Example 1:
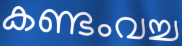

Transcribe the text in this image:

കണ്ടംവച്ച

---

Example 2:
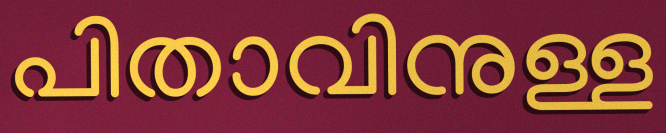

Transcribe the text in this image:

പിതാവിനുള്ള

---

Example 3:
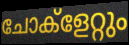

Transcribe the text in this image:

ചോക്ളേറ്റും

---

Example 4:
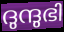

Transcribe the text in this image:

ദുന്ദുഭി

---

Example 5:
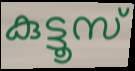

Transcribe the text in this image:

കുട്ടൂസ്